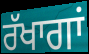
ਰੱਖਾਗਾਂ